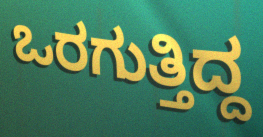
ಒರಗುತ್ತಿದ್ದ